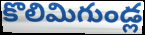
కొలిమిగుండ్ల